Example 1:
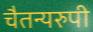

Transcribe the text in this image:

चैतन्यरुपी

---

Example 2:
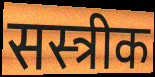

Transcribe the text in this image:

सस्त्रीक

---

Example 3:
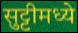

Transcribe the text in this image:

सुट्टीमध्ये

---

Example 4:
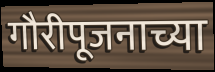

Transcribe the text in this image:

गौरीपूजनाच्या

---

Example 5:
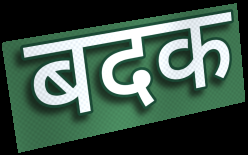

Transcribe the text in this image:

बदक